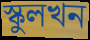
স্কুলখন